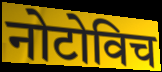
नोटोविच